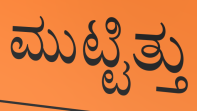
ಮುಟ್ಟಿತ್ತು